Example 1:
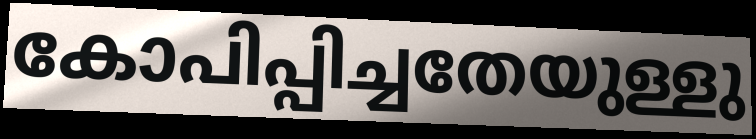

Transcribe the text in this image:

കോപിപ്പിച്ചതേയുള്ളു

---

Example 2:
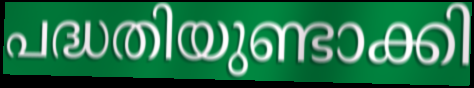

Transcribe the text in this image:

പദ്ധതിയുണ്ടാക്കി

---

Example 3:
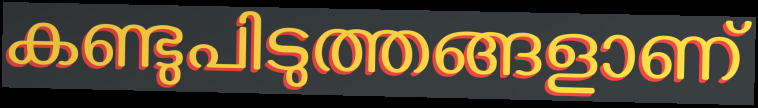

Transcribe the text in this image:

കണ്ടുപിടുത്തങ്ങളാണ്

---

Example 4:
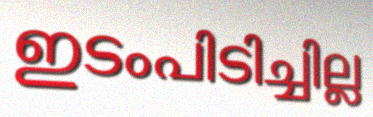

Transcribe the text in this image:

ഇടംപിടിച്ചില്ല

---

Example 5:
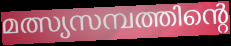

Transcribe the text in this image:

മത്സ്യസമ്പത്തിന്റെ